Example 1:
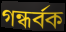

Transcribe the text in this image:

গন্ধৰ্বক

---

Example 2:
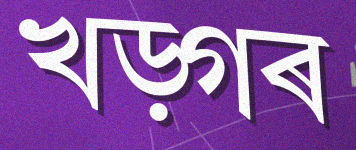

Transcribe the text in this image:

খড়্গৰ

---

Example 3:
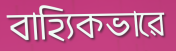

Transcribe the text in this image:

বাহ্যিকভাৱে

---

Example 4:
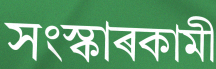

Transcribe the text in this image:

সংস্কাৰকামী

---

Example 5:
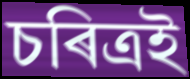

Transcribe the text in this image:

চৰিত্ৰই